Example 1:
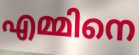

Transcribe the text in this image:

എമ്മിനെ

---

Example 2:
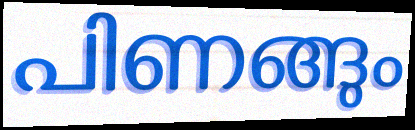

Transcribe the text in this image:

പിണങ്ങും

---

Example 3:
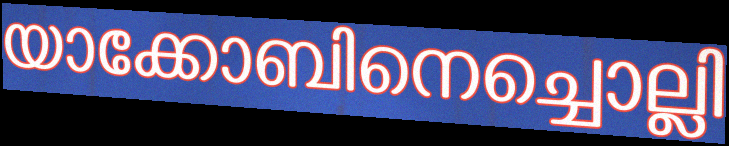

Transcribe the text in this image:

യാക്കോബിനെച്ചൊല്ലി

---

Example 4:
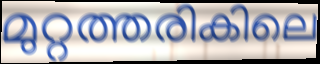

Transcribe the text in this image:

മുറ്റത്തരികിലെ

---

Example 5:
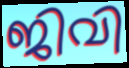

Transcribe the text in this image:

ജിവി